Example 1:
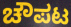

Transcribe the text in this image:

ಚೌಪಟ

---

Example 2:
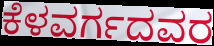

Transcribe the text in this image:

ಕೆಳವರ್ಗದವರ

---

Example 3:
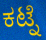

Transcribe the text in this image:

ಕಟ್ನೆ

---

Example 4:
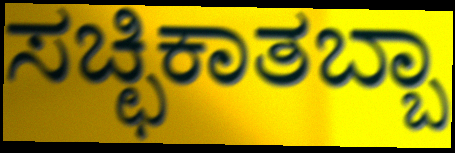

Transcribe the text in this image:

ಸಚ್ಛಿಕಾತಬ್ಬಾ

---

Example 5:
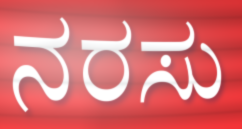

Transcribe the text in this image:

ನರಸು